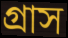
গ্রাস